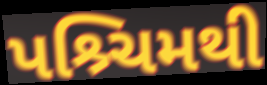
પશ્ર્ચિમથી